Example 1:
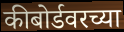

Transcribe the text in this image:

कीबोर्डवरच्या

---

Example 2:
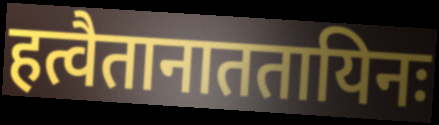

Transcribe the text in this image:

हत्वैतानाततायिनः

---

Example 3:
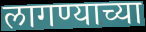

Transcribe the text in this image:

लागण्याच्या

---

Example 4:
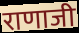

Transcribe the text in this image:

राणाजी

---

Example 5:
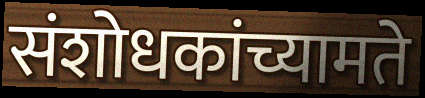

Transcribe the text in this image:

संशोधकांच्यामते